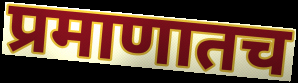
प्रमाणातच